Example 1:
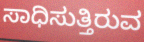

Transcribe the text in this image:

ಸಾಧಿಸುತ್ತಿರುವ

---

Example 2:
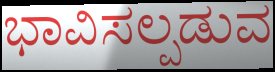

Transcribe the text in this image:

ಭಾವಿಸಲ್ಪಡುವ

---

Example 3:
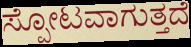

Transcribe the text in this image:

ಸ್ಪೋಟವಾಗುತ್ತದೆ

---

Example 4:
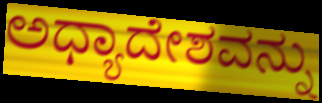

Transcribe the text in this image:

ಅಧ್ಯಾದೇಶವನ್ನು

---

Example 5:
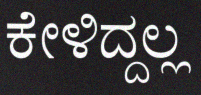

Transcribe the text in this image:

ಕೇಳಿದ್ದಲ್ಲ